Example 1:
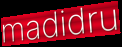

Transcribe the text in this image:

madidru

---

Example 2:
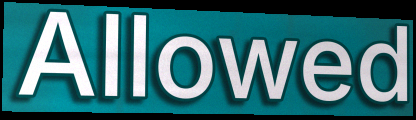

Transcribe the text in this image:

Allowed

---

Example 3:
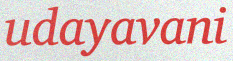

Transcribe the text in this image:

udayavani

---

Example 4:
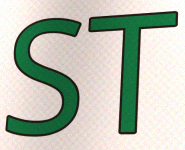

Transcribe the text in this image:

ST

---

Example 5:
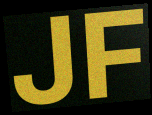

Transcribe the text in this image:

JF